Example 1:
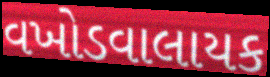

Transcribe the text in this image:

વખોડવાલાયક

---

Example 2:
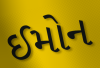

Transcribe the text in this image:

ઈમોન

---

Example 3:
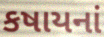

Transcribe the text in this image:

કષાયનાં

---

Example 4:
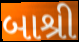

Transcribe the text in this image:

બાશ્રી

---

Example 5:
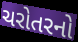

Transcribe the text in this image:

ચરોતરનો